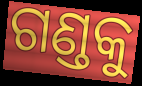
ଗଣ୍ଡକୁ